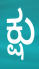
ಕ್ಷು